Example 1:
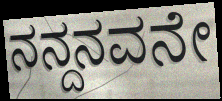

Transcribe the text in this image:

ನನ್ದನವನೇ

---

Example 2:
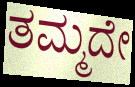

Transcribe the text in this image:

ತಮ್ಮದೇ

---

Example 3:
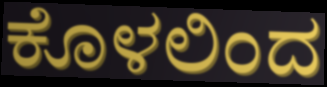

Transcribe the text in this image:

ಕೊಳಲಿಂದ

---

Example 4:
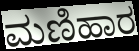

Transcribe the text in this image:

ಮಣಿಹಾರ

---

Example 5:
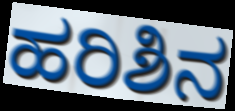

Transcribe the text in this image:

ಹರಿಶಿನ